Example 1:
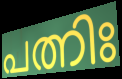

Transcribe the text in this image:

പത്നിഃ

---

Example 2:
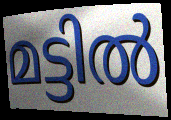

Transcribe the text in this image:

മട്ടിൽ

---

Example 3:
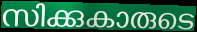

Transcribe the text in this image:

സിക്കുകാരുടെ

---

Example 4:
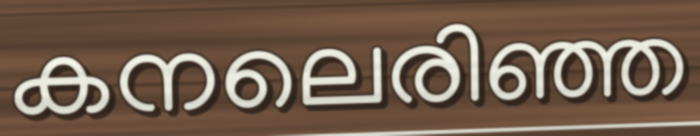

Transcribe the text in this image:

കനലെരിഞ്ഞ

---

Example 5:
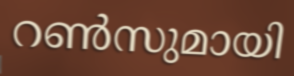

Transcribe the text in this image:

റൺസുമായി